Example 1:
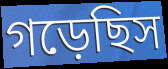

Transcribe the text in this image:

গড়েছিস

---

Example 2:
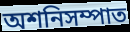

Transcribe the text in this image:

অশনিসম্পাত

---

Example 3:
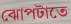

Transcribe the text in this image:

ঝোপটাতে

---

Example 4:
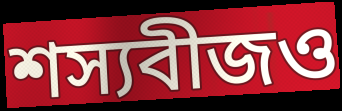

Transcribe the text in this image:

শস্যবীজও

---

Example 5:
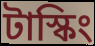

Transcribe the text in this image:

টাস্কিং